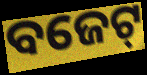
ବଜେଟ୍